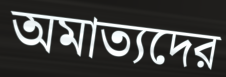
অমাত্যদের